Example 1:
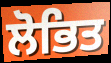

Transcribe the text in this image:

ਲੋਭਿਤ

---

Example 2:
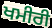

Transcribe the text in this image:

ਖਮੀਰੀ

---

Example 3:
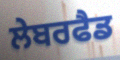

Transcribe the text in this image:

ਲੇਬਰਫੈਡ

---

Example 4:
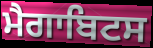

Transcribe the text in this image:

ਮੈਗਾਬਿਟਸ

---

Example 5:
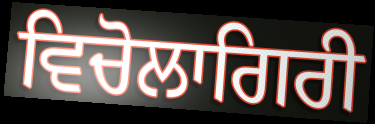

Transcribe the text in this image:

ਵਿਚੋਲਾਗਿਰੀ